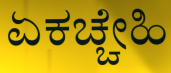
ಏಕಚ್ಚೇಹಿ